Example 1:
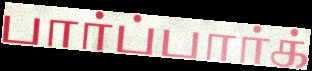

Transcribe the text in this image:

பார்ப்பார்க்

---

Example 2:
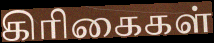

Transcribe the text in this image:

கிரிகைகள்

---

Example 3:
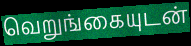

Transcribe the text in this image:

வெறுங்கையுடன்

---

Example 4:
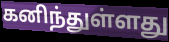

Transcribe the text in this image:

கனிந்துள்ளது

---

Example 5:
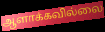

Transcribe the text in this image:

ஆளாக்கவில்லை